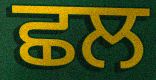
ਛਲ